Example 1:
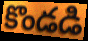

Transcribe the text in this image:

కొండడి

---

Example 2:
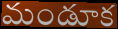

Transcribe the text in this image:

మండూక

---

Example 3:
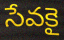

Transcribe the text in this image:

సేవకై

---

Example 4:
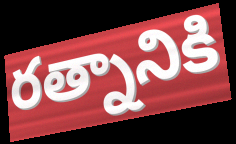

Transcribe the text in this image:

రత్నానికి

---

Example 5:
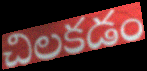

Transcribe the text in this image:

చిలకడం